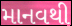
માનવથી